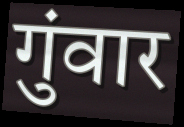
गुंवार